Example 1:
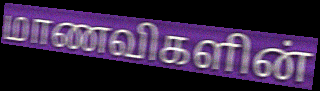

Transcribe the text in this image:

மாணவிகளின்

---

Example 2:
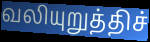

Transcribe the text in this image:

வலியுறுத்திச்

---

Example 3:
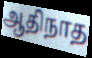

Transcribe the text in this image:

ஆதிநாத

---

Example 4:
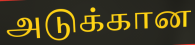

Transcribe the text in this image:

அடுக்கான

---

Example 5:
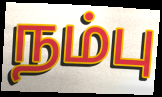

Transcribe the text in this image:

நம்பு